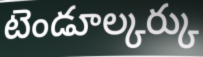
టెండూల్కర్కు